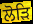
ਲੋੜਿ